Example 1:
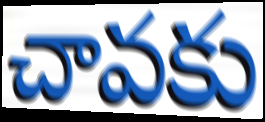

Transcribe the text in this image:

చావకు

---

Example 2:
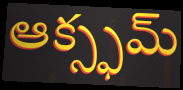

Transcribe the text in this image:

ఆక్స్ఫమ్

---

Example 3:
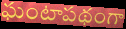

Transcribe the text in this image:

ఘంటాపథంగా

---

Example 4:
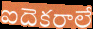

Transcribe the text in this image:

ఐదెకరాలే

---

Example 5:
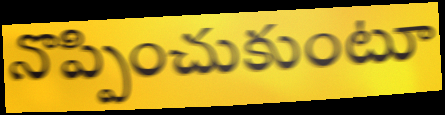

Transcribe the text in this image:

నొప్పించుకుంటూ